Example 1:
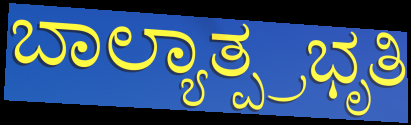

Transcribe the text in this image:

ಬಾಲ್ಯಾತ್ಪ್ರಭೃತಿ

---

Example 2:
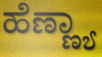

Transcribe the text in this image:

ಹೆಣ್ಣ್ಯಾ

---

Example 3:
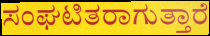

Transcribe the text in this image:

ಸಂಘಟಿತರಾಗುತ್ತಾರೆ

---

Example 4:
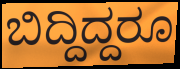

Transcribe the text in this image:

ಬಿದ್ದಿದ್ದರೂ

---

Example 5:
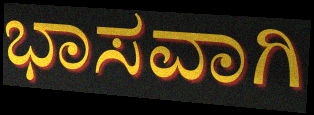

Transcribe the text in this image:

ಭಾಸವಾಗಿ